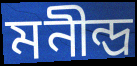
মনীন্দ্র